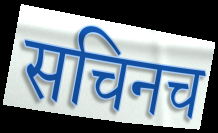
सचिनच